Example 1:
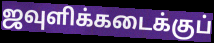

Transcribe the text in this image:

ஜவுளிக்கடைக்குப்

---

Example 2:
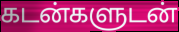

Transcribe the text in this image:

கடன்களுடன்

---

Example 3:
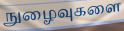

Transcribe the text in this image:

நுழைவுகளை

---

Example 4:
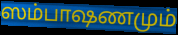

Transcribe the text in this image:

ஸம்பாஷணமும்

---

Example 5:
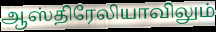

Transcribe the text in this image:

ஆஸ்திரேலியாவிலும்